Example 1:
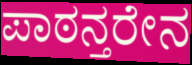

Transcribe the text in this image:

ಪಾಠನ್ತರೇನ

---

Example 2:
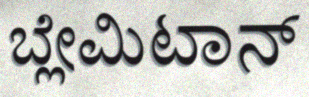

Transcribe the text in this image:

ಬ್ಲೇಮಿಟಾನ್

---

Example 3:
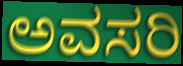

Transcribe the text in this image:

ಅವಸರಿ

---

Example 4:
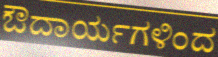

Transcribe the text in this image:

ಔದಾರ್ಯಗಳಿಂದ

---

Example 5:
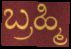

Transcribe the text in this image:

ಬ್ರಹ್ಮಿ